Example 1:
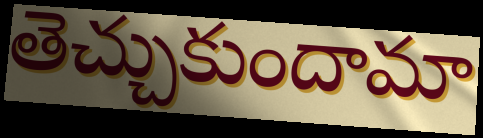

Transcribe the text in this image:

తెచ్చుకుందామా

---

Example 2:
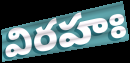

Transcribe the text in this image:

విరహః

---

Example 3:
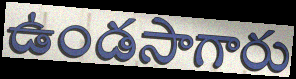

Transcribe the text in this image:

ఉండసాగారు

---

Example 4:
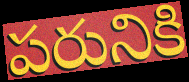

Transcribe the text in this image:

పరునికి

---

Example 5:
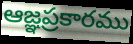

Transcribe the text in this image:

ఆజ్ఞప్రకారము